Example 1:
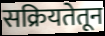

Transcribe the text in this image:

सक्रियतेतून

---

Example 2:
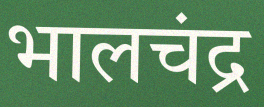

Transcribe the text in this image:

भालचंद्र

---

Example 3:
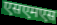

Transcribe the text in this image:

एसएमएस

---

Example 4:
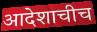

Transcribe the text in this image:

आदेशाचीच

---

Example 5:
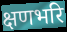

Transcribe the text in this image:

क्षणभरि